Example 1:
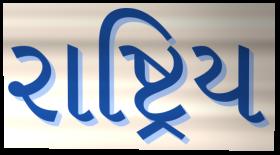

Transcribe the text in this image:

રાષ્ટ્રિય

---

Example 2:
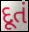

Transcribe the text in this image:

દૂતં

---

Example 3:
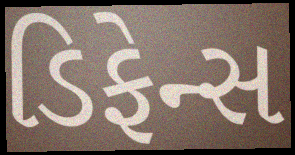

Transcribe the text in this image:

ડિફેન્સ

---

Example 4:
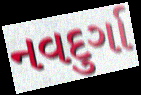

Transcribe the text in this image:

નવદુર્ગા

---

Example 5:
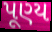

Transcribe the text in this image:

પૂણ્ય